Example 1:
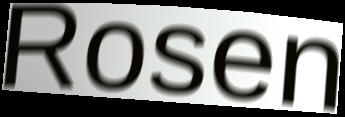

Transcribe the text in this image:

Rosen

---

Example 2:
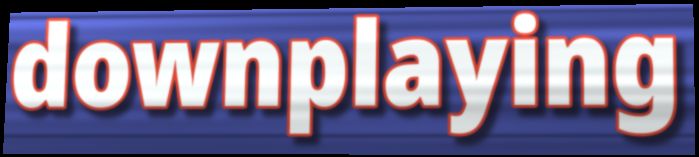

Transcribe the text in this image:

downplaying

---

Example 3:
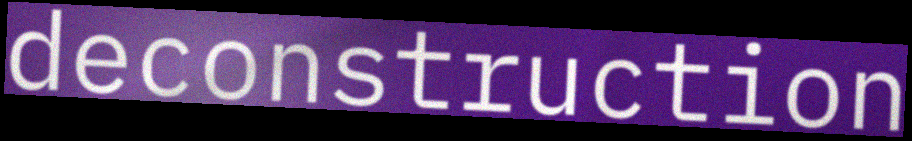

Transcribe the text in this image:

deconstruction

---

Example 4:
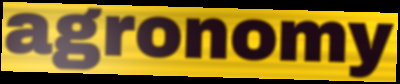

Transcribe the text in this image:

agronomy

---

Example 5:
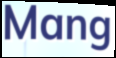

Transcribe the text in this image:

Mang